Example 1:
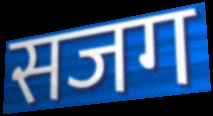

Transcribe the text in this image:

सजग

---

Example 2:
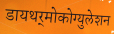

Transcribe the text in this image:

डायथर्मोकोग्युलेशन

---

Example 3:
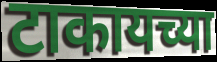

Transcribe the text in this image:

टाकायच्या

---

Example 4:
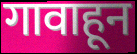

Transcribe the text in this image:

गावाहून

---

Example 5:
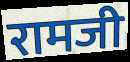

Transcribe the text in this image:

रामजी